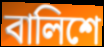
বালিশে